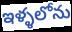
ఇళ్ళలోను